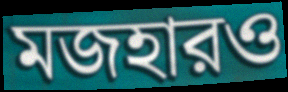
মজহারও